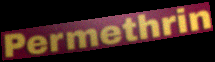
Permethrin